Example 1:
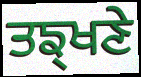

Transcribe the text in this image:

ਤਙ੍ਖਣੇ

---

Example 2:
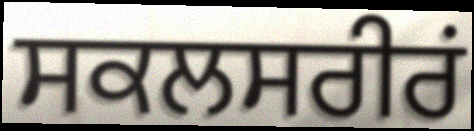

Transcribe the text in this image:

ਸਕਲਸਰੀਰਂ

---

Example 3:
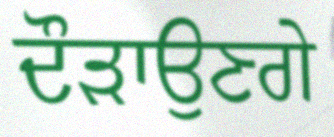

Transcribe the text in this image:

ਦੌੜਾਉਣਗੇ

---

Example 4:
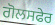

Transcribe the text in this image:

ਗੋਲਸਫੇਰ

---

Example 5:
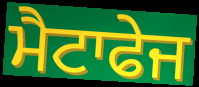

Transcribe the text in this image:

ਮੈਟਾਫੇਜ